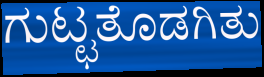
ಗುಟ್ಟತೊಡಗಿತು